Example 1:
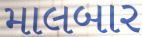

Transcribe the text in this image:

માલબાર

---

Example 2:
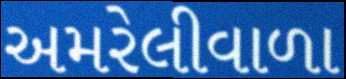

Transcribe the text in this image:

અમરેલીવાળા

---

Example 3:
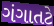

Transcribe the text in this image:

ગંગાતટે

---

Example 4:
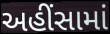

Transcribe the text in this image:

અહીંસામાં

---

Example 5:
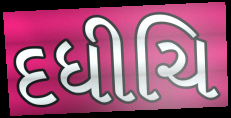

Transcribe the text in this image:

દધીચિ